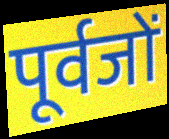
पूर्वजों